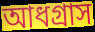
আধগ্রাস